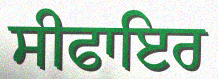
ਸੀਫਾਇਰ